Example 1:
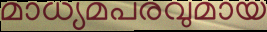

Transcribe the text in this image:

മാധ്യമപരവുമായ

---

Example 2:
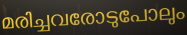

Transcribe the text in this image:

മരിച്ചവരോടുപോലും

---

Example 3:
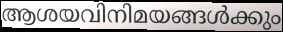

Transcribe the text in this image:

ആശയവിനിമയങ്ങൾക്കും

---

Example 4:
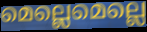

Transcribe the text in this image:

മെല്ലെമെല്ലെ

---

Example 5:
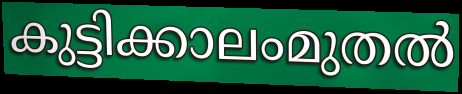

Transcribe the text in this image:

കുട്ടിക്കാലംമുതൽ